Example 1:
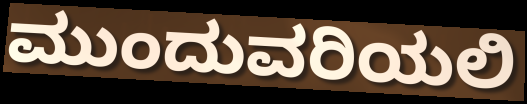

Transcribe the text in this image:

ಮುಂದುವರಿಯಲಿ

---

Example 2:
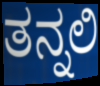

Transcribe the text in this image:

ತನ್ನಲಿ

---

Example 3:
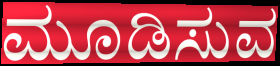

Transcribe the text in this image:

ಮೂಡಿಸುವ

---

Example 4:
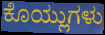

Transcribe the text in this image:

ಕೊಯ್ಲುಗಳು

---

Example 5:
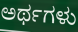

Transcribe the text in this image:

ಅರ್ಥಗಳು